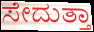
ಸೇದುತ್ತಾ